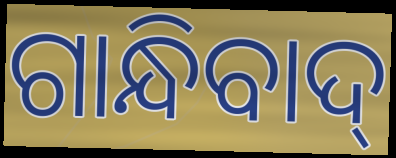
ଗାନ୍ଧିବାଦ୍